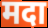
मदा